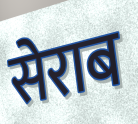
सेराब